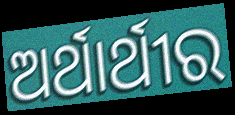
ଅର୍ଥାର୍ଥୀର